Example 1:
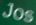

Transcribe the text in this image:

Jos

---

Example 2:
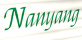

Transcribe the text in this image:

Nanyang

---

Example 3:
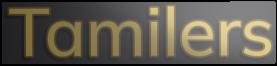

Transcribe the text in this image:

Tamilers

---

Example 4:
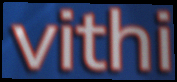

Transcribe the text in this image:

vithi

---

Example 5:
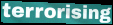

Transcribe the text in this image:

terrorising